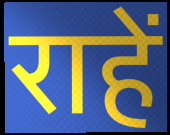
राहें